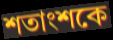
শতাংশকে